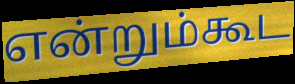
என்றும்கூட